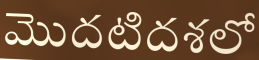
మొదటిదశలో